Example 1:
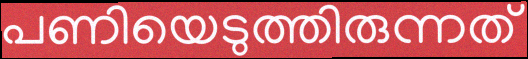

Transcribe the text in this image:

പണിയെടുത്തിരുന്നത്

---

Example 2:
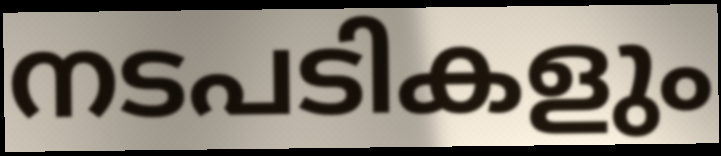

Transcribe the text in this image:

നടപടികളും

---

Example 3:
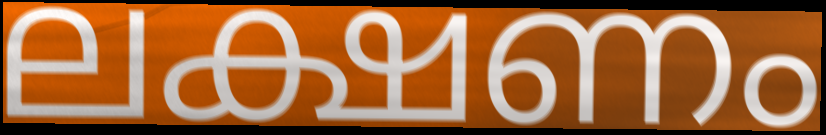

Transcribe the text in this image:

ലക്ഷണം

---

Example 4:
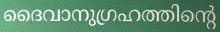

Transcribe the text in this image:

ദൈവാനുഗ്രഹത്തിന്റെ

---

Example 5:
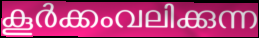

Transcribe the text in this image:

കൂർക്കംവലിക്കുന്ന